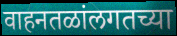
वाहनतळांलगतच्या